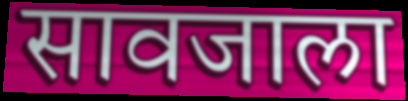
सावजाला